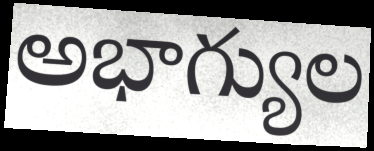
అభాగ్యుల